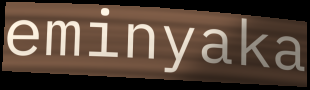
eminyaka